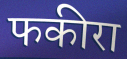
फकीरा